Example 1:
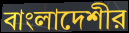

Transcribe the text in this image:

বাংলাদেশীর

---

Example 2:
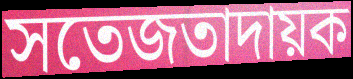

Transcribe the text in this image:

সতেজতাদায়ক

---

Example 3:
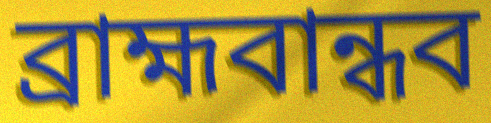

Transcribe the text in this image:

ব্রাহ্মবান্ধব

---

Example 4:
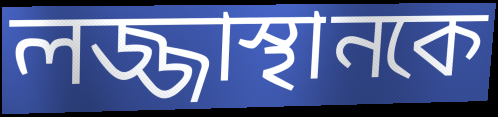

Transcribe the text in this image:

লজ্জাস্থানকে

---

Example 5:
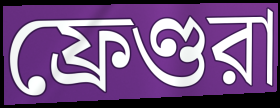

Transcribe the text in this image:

ফ্রেণ্ডরা